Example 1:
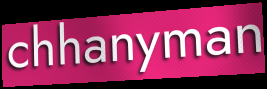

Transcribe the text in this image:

chhanyman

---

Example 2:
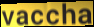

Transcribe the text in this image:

vaccha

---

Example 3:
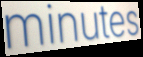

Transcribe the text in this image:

minutes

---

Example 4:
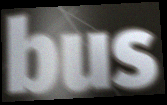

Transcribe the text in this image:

bus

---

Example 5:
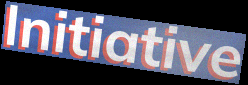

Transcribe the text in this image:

Initiative